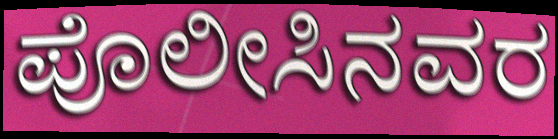
ಪೊಲೀಸಿನವರ